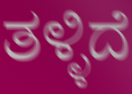
ತಳ್ಳಿದೆ